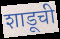
शाडूची